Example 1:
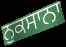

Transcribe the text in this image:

ਨੁਕਸਾਨਾ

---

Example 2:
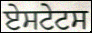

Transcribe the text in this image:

ਏਸਟੇਟਸ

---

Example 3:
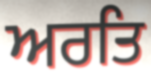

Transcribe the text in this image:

ਅਰਤਿ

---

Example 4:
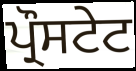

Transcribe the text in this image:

ਪ੍ਰੌਸਟੇਟ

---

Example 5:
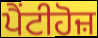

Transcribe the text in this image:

ਪੈਂਟੀਹੋਜ਼